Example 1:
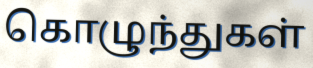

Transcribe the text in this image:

கொழுந்துகள்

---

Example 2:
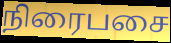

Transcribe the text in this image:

நிரைபசை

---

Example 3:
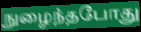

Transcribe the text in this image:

நுழைந்தபோது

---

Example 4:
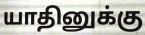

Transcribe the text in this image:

யாதினுக்கு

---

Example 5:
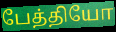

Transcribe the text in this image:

பேத்தியோ